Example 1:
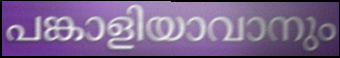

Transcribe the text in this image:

പങ്കാളിയാവാനും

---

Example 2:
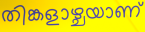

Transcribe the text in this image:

തിങ്കളാഴ്ചയാണ്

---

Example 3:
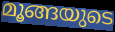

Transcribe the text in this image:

മൂങ്ങയുടെ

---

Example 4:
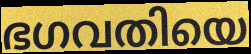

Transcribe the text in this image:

ഭഗവതിയെ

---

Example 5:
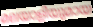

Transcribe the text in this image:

മലയാളിയുമായ